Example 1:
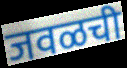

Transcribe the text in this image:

जवळची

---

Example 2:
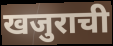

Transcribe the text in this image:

खजुराची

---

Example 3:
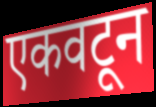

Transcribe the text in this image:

एकवटून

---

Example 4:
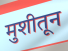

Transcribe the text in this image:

मुशीतून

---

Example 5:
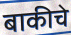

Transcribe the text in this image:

बाकीचे